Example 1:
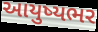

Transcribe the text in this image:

આયુષ્યભર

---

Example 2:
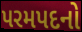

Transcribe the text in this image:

પરમપદનો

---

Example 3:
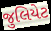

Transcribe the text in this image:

જુલિયેટ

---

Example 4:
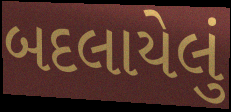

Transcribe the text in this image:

બદલાયેલું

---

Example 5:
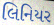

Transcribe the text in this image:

લિનિયર